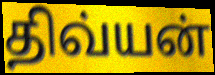
திவ்யன்